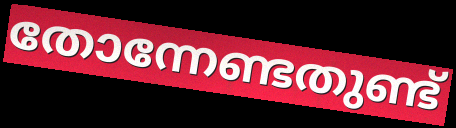
തോന്നേണ്ടതുണ്ട്